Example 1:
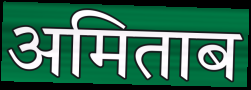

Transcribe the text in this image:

अमिताब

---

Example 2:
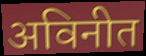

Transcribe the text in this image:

अविनीत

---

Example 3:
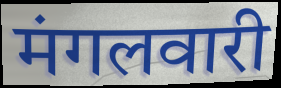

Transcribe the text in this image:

मंगलवारी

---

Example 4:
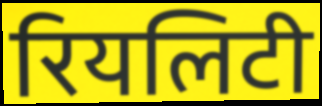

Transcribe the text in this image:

रियलिटी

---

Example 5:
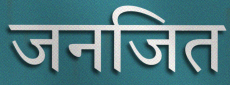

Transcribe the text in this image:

जनजित